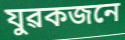
যুৱকজনে